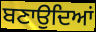
ਬਣਾਉਦਿਆਂ